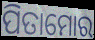
ପିତାମୋର